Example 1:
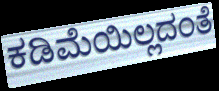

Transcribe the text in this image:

ಕಡಿಮೆಯಿಲ್ಲದಂತೆ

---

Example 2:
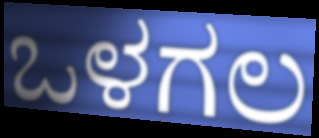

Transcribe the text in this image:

ಒಳಗಲ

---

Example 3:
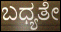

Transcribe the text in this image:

ಬಧ್ಯತೇ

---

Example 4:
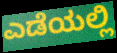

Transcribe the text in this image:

ಎಡೆಯಲ್ಲಿ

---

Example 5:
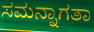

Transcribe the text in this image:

ಸಮನ್ನಾಗತಾ